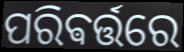
ପରିଵର୍ତ୍ତରେ